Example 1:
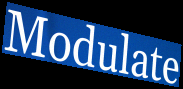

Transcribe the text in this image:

Modulate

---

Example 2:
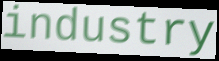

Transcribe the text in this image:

industry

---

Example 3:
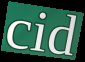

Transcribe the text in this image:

cid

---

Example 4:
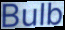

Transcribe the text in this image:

Bulb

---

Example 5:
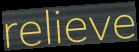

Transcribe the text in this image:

relieve